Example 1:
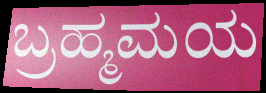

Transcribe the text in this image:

ಬ್ರಹ್ಮಮಯ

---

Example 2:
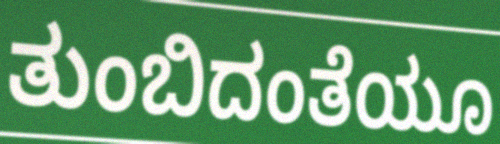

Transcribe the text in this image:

ತುಂಬಿದಂತೆಯೂ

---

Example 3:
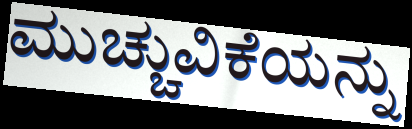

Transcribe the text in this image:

ಮುಚ್ಚುವಿಕೆಯನ್ನು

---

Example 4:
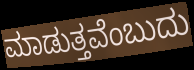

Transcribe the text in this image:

ಮಾಡುತ್ತವೆಂಬುದು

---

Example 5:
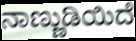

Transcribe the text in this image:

ನಾಣ್ಣುಡಿಯಿದೆ